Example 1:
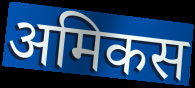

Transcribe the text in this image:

अमिकस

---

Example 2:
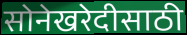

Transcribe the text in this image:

सोनेखरेदीसाठी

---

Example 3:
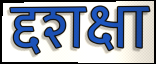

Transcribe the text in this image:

द्दशक्षा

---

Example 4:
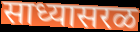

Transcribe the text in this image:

साध्यासरळ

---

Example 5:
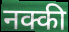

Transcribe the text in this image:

नक्की